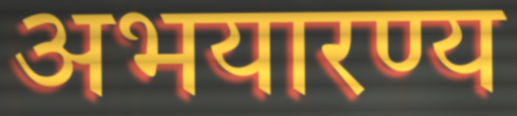
अभयारण्य